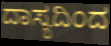
ದಾಸ್ಯದಿಂದ